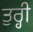
ਤੁਰ੍ਹੀ